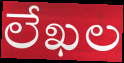
లేఖల